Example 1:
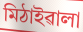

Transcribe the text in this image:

মিঠাইৱালা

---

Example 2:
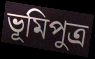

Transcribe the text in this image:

ভূমিপুত্ৰ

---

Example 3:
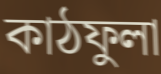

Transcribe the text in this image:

কাঠফুলা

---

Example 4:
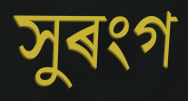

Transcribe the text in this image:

সুৰংগ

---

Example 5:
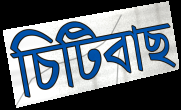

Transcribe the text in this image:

চিটিবাছ